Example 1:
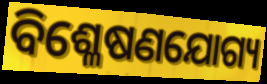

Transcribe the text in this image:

ବିଶ୍ଳେଷଣଯୋଗ୍ୟ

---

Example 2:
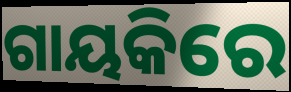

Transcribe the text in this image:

ଗାୟକିରେ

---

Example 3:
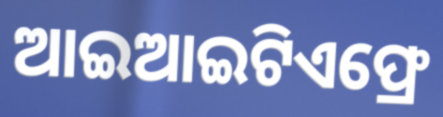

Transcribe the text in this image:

ଆଇଆଇଟିଏଫ୍ରେ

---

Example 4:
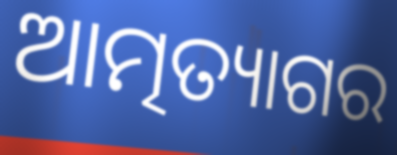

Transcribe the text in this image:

ଆତ୍ମତ୍ୟାଗର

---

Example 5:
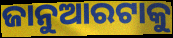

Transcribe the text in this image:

ଜାନୁଆରଟାକୁ